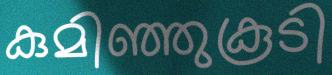
കുമിഞ്ഞുകൂടി